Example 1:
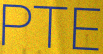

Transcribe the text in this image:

PTE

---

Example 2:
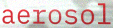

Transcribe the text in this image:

aerosol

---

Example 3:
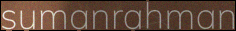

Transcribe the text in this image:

sumanrahman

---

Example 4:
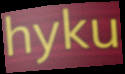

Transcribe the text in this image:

hyku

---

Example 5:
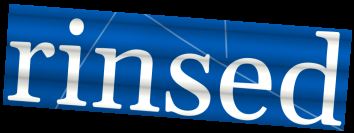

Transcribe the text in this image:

rinsed